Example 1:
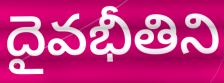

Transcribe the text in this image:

దైవభీతిని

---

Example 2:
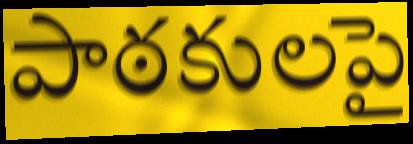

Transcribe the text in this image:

పాఠకులపై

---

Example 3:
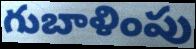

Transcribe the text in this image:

గుబాళింపు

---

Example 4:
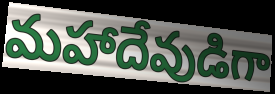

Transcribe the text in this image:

మహాదేవుడిగా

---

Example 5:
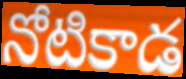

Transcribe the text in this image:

నోటికాడ